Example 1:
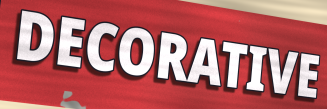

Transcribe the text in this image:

DECORATIVE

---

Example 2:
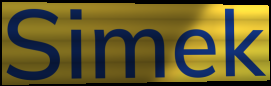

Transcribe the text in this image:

Simek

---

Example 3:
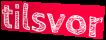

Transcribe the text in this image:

tilsvor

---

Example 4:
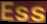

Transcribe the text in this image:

Ess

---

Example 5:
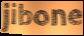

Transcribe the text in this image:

jibone